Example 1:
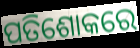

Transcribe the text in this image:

ପତିଶୋକରେ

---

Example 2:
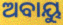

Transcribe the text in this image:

ଅବାୟୁ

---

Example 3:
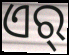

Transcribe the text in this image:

ଏର୍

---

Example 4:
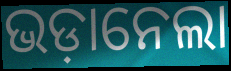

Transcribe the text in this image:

ଭଡ଼ାନେଲା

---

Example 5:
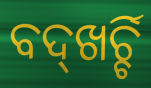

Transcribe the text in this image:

ବଦ୍‌ଖର୍ଚ୍ଚି